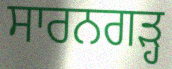
ਸਾਰਨਗੜ੍ਹ